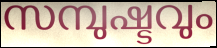
സമ്പുഷ്ടവും